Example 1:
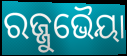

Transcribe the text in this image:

ରଜ୍ଜୁଭୈୟା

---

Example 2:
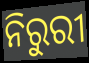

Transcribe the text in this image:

ନିରୁରୀ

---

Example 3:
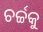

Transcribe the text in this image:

ଚର୍ଚ୍ଚକୁ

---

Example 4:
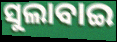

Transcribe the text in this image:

ସୁଲାବାଇ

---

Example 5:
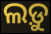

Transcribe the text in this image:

ଲଡ଼ୁ